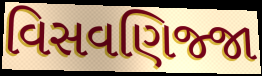
વિસવણિજ્જા